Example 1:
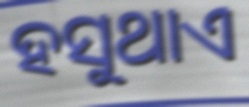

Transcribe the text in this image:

ହସୁଥାଏ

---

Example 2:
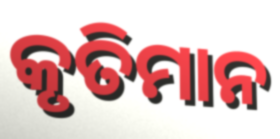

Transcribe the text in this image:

କୃତିମାନ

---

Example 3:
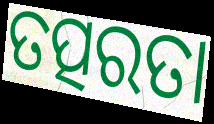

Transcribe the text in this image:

ତତ୍ପରତା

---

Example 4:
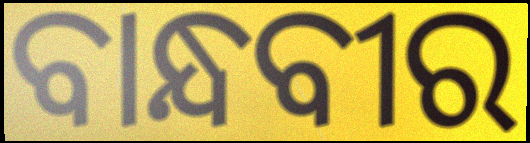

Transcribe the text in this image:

ବାନ୍ଧବୀର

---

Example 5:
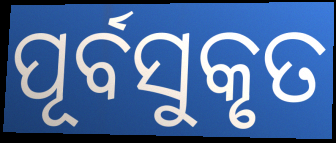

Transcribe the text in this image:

ପୂର୍ବସୁକୃତ